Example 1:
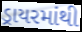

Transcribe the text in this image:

ડ્રાયરમાંથી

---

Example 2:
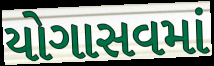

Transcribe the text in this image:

યોગાસવમાં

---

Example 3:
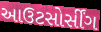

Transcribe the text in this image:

આઉટસોર્સીંગ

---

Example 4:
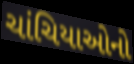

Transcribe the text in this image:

ચાંચિયાઓનો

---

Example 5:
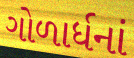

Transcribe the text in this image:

ગોળાર્ધનાં